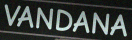
VANDANA